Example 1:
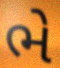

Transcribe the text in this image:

ભે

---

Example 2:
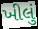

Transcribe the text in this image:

ખીલું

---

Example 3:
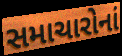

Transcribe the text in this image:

સમાચારોનાં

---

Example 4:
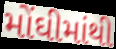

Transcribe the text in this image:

મોંઘીમાંથી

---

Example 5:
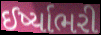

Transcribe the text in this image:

ઈર્ષ્યાભરી